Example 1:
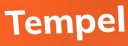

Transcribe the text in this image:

Tempel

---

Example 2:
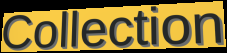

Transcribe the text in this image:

Collection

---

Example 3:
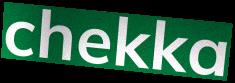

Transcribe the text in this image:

chekka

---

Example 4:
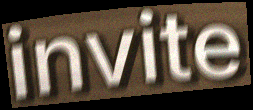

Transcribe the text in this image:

invite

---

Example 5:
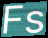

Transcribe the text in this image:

Fs